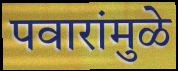
पवारांमुळे